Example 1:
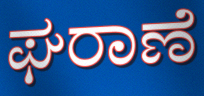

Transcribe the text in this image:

ಘರಾಣೆ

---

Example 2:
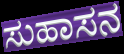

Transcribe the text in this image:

ಸುಹಾಸನ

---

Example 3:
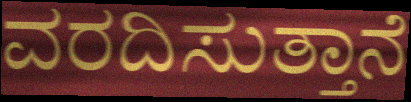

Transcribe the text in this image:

ವರದಿಸುತ್ತಾನೆ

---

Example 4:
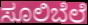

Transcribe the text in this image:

ಸೂಲಿಬೆಲೆ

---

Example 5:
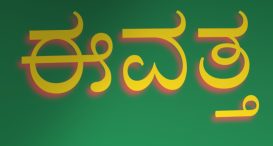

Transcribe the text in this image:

ಈವತ್ತ